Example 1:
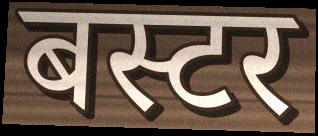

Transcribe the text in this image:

बस्टर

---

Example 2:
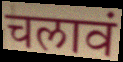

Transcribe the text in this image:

चलावं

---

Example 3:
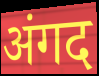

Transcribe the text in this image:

अंगद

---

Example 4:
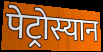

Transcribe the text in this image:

पेट्रोस्यान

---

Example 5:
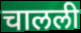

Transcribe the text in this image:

चालली